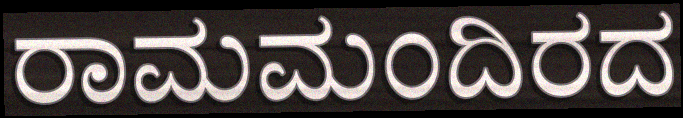
ರಾಮಮಂದಿರದ